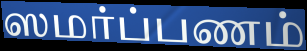
ஸமர்ப்பணம்